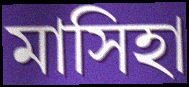
মাসিহা